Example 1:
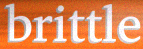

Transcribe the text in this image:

brittle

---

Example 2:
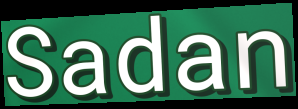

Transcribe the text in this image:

Sadan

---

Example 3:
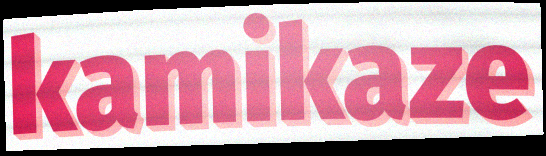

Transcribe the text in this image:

kamikaze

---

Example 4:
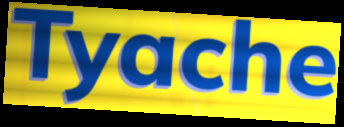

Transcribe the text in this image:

Tyache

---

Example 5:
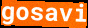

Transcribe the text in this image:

gosavi